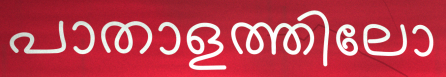
പാതാളത്തിലോ